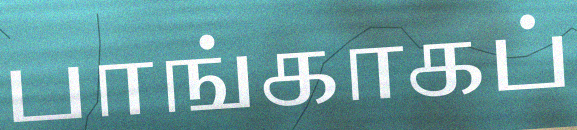
பாங்காகப்